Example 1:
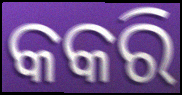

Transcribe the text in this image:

କକରି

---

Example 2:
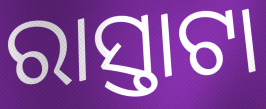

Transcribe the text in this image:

ରାସ୍ତାଟା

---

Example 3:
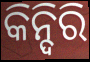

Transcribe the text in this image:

କିନ୍ଦିରି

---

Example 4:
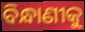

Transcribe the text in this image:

ବିନ୍ଧାଣୀକୁ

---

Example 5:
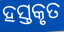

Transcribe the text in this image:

ହସ୍ତକୃତ